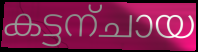
കട്ടന്ചായ